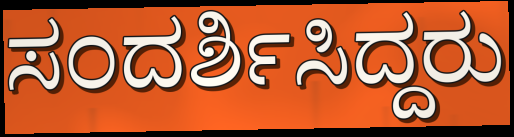
ಸಂದರ್ಶಿಸಿದ್ದರು